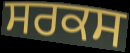
ਸਰਕਸ